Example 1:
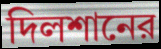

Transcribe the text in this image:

দিলশানের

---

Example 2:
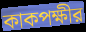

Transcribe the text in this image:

কাকপক্ষীর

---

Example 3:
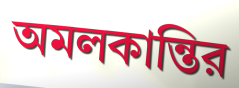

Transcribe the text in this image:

অমলকান্তির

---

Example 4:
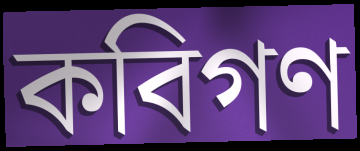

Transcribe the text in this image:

কবিগণ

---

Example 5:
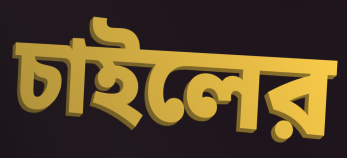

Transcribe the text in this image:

চাইলের